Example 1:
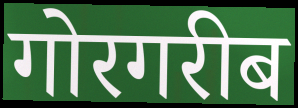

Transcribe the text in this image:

गोरगरीब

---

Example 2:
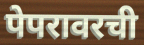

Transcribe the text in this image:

पेपरावरची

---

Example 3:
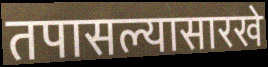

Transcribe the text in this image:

तपासल्यासारखे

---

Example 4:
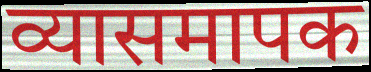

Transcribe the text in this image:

व्यासमापक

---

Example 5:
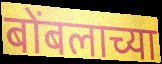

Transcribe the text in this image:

बोंबलाच्या